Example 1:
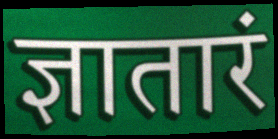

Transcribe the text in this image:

ज्ञातारं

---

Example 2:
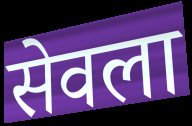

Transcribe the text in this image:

सेवला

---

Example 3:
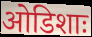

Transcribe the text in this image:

ओडिशाः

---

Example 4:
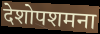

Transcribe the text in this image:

देशोपशमना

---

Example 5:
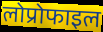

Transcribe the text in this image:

लोप्रोफाइल